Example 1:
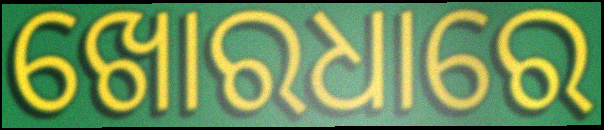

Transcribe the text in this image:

ଖୋରଧାରେ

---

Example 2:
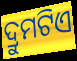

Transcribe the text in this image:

ଦ୍ରୁମଟିଏ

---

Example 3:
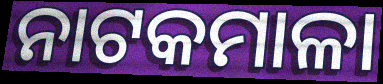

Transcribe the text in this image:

ନାଟକମାଳା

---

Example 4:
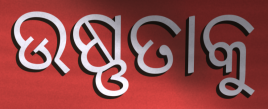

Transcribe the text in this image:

ଉଷ୍ଣତାକୁ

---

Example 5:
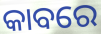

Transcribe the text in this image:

କାବରେ